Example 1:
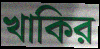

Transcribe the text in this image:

খাকির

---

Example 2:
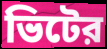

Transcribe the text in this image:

ভিটের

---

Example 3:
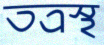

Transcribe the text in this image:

তত্রস্থ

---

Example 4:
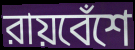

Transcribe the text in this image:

রায়বেঁশে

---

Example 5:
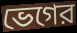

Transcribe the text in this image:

ভেগের